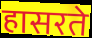
हासरते